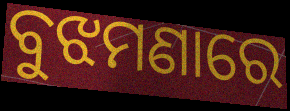
ବୁଝମଣାରେ